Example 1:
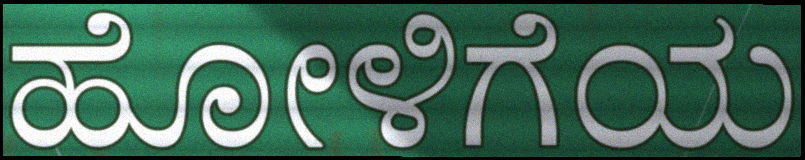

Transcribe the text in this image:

ಹೋಳಿಗೆಯ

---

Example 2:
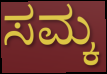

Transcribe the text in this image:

ಸಮ್ಕ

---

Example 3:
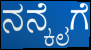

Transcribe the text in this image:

ನನ್ಕೈಗೆ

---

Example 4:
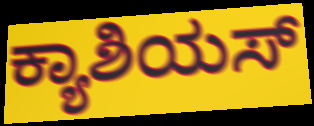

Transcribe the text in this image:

ಕ್ಯಾಶಿಯಸ್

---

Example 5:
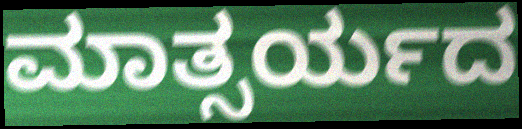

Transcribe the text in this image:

ಮಾತ್ಸರ್ಯದ